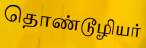
தொண்டூழியர்